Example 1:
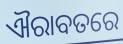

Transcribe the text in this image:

ଐରାବତରେ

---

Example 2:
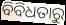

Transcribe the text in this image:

ବିବିଧତାରୁ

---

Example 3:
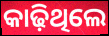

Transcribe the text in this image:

କାଢ଼ିଥିଲେ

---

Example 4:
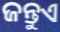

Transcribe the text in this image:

ଜନ୍ତୁଏ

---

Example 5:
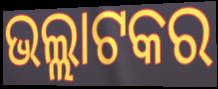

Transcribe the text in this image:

ଭଲ୍ଲାଟକର